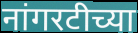
नांगरटीच्या